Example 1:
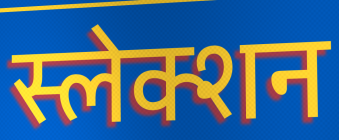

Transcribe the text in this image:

स्लेक्शन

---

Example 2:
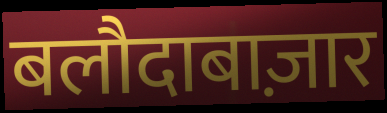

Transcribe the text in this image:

बलौदाबाज़ार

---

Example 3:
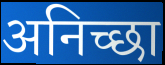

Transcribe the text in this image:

अनिच्छा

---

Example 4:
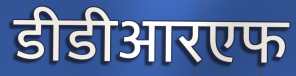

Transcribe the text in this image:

डीडीआरएफ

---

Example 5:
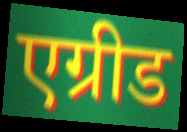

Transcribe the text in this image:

एग्रीड